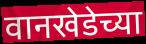
वानखेडेच्या